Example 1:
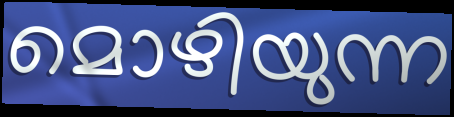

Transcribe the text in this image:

മൊഴിയുന്ന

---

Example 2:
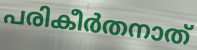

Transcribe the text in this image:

പരികീർതനാത്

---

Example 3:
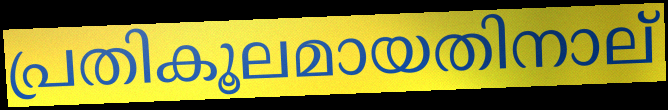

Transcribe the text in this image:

പ്രതികൂലമായതിനാല്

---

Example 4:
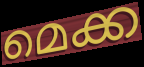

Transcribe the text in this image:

മെക്ക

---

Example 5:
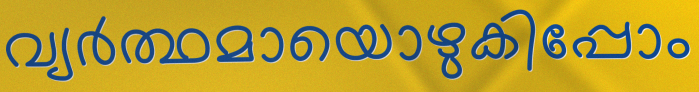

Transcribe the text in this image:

വ്യർത്ഥമായൊഴുകിപ്പോം